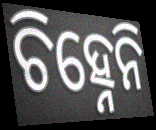
ଚିହ୍ନେନି